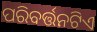
ପରିବର୍ତ୍ତନଟିଏ